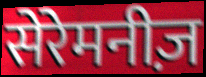
सेरेमनीज़